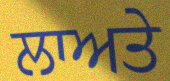
ਲਾਅਤੇ